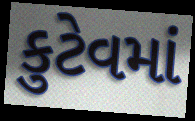
કુટેવમાં